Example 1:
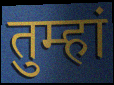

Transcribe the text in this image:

तुम्हां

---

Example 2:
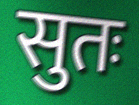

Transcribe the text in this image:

सुतः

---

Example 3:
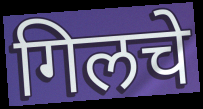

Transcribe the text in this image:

गिलचे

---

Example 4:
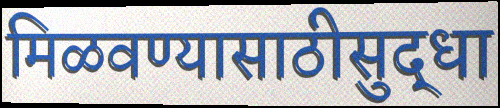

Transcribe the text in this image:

मिळवण्यासाठीसुद्धा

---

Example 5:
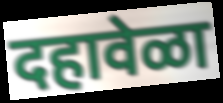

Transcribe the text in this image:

दहावेळा